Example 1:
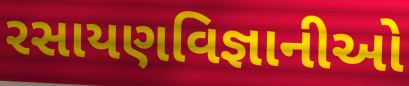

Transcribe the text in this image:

રસાયણવિજ્ઞાનીઓ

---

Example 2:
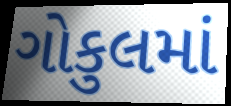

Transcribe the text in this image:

ગોકુલમાં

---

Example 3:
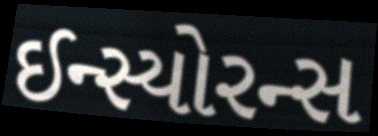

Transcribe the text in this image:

ઈન્સ્યોરન્સ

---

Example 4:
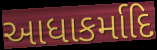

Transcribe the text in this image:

આધાકર્માદિ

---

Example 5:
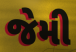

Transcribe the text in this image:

જેમી